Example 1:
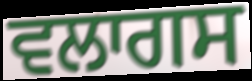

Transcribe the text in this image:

ਵਲਾਗਸ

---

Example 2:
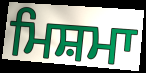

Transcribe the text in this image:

ਮਿਸ਼ਮਾ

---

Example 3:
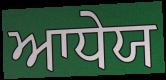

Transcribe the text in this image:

ਆਧੇਯ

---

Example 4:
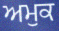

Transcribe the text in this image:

ਅਮੁਕ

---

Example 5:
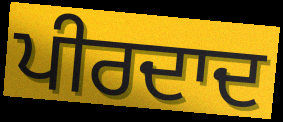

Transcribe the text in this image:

ਪੀਰਦਾਦ